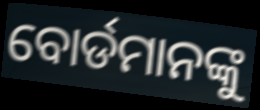
ବୋର୍ଡମାନଙ୍କୁ